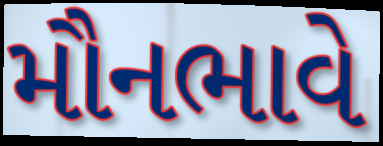
મૌનભાવે